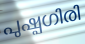
പുഷ്പഗിരി